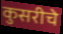
कुसरीचे